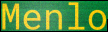
Menlo